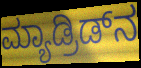
ಮ್ಯಾಡ್ರಿಡ್‌ನ